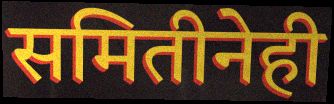
समितीनेही